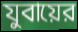
যুবায়ের